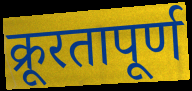
क्रूरतापूर्ण